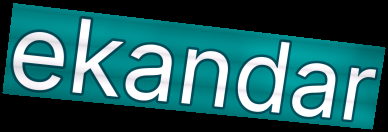
ekandar